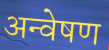
अन्वेषण